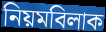
নিয়মবিলাক